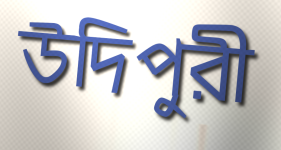
উদিপুরী